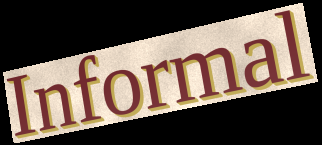
Informal